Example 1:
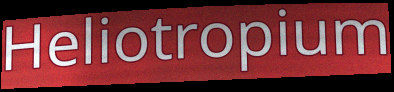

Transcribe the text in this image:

Heliotropium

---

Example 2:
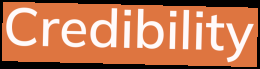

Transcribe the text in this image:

Credibility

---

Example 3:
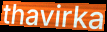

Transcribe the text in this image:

thavirka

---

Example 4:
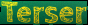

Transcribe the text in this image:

Terser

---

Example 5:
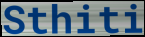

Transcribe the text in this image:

Sthiti